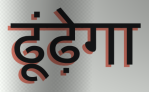
ढूंढ़ेगा